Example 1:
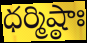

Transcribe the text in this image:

ధర్మిష్ఠాః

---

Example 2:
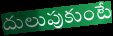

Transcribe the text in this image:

దులుపుకుంటే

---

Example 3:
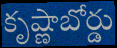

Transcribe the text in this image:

కృష్ణాబోర్డు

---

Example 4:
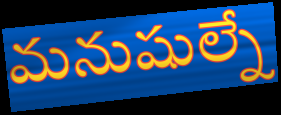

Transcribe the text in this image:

మనుషుల్నే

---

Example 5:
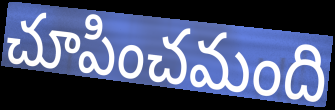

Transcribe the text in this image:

చూపించమంది